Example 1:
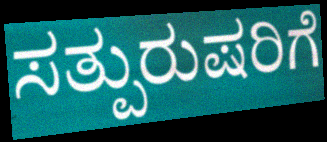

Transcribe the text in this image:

ಸತ್ಪುರುಷರಿಗೆ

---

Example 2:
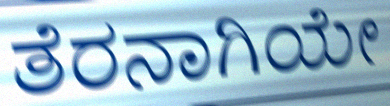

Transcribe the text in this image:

ತೆರನಾಗಿಯೇ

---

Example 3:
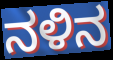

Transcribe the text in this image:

ನಳಿನ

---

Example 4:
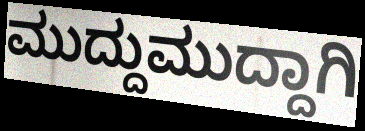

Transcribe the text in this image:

ಮುದ್ದುಮುದ್ದಾಗಿ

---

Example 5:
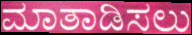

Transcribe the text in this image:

ಮಾತಾಡಿಸಲು